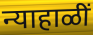
न्याहाळीं